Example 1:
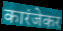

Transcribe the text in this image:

कारंजेकर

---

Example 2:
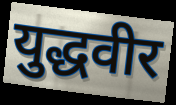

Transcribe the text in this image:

युद्धवीर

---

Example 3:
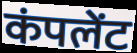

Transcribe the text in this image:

कंपलेंट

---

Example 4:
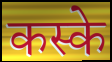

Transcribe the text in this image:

कस्के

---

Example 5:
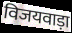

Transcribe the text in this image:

विजयवाड़ा